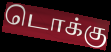
டொக்கு